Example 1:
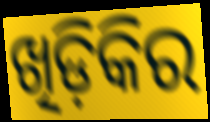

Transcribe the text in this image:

ଖିଡ଼ିକିର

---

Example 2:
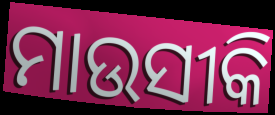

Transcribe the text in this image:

ମାଉସୀକି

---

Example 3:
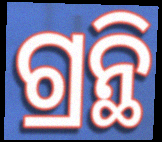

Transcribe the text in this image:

ଗ୍ରନ୍ଥି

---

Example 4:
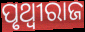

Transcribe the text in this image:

ପୃଥ୍ୱୀରାଜ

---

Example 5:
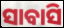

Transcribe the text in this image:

ସାବାସି